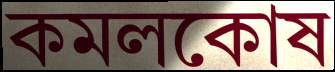
কমলকোষ